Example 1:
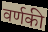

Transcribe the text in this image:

वर्णकी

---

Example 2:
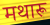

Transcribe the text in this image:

मथारू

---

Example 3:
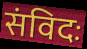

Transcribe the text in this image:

संविदः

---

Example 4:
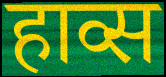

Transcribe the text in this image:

हाव्स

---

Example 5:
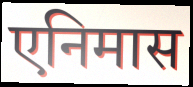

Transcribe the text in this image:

एनिमास